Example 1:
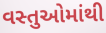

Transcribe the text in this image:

વસ્તુઓમાંથી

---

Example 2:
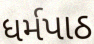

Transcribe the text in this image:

ધર્મપાઠ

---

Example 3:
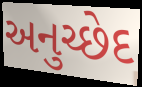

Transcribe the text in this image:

અનુચ્છેદ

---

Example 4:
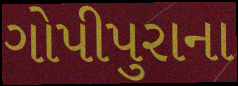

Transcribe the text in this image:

ગોપીપુરાના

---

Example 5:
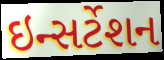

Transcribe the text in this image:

ઇન્સર્ટેશન